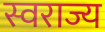
स्वराज्य